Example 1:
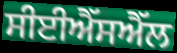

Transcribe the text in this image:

ਸੀਈਐੱਸਐੱਲ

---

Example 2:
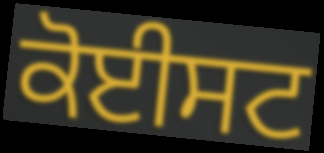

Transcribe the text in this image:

ਕੋਈਸਟ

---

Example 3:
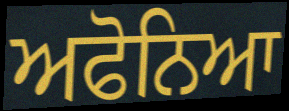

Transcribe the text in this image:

ਅਫੋਨਿਆ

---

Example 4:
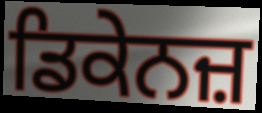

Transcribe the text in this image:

ਡਿਕੇਨਜ਼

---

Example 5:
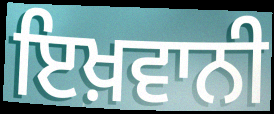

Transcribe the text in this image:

ਇਖ਼ਵਾਨੀ